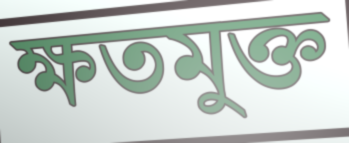
ক্ষতমুক্ত